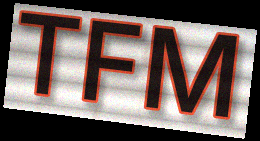
TFM